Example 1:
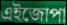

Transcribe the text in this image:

এইজোপা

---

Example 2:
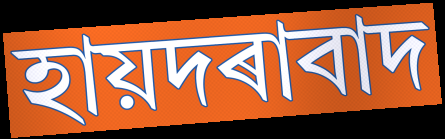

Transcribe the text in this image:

হায়দৰাবাদ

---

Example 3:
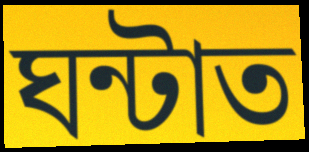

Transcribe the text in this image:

ঘন্টাত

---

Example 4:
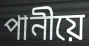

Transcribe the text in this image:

পানীয়ে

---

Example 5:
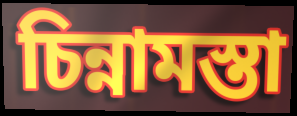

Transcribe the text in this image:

চিন্নামস্তা